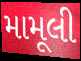
મામૂલી